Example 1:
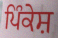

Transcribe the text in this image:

ਪਿੰਕੇਸ਼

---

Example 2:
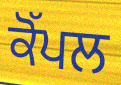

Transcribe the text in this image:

ਕੋੱਪਲ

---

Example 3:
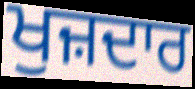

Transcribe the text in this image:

ਖੁਜ਼ਦਾਰ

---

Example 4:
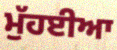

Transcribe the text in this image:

ਮੁੱਹਈਆ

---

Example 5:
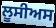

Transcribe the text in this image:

ਲੂਸੀਅਸ